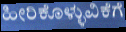
ಹೀರಿಕೊಳ್ಳುವಿಕೆಗೆ